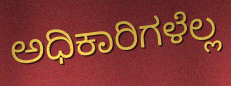
ಅಧಿಕಾರಿಗಳೆಲ್ಲ